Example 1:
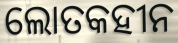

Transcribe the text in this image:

ଲୋତକହୀନ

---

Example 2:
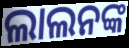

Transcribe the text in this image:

ଲାଲନଙ୍କ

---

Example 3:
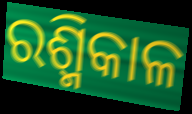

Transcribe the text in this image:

ରଶ୍ମିକାଳ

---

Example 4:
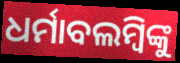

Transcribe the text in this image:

ଧର୍ମାବଲମ୍ବିଙ୍କୁ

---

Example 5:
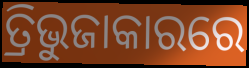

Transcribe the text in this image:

ତ୍ରିଭୁଜାକାରରେ